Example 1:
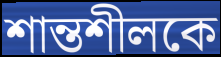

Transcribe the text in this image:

শান্তশীলকে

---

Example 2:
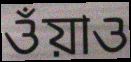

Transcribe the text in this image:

ওঁয়াও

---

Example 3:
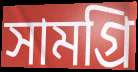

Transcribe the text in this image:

সামগ্রি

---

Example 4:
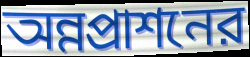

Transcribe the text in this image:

অন্নপ্রাশনের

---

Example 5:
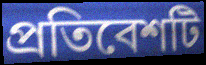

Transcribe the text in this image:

প্রতিবেশটি